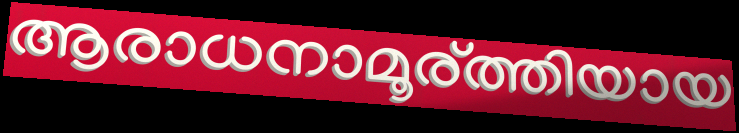
ആരാധനാമൂര്ത്തിയായ